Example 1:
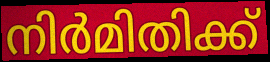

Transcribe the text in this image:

നിർമിതിക്ക്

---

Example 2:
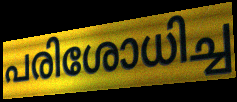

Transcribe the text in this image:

പരിശോധിച്ച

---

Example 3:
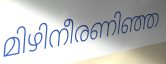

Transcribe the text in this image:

മിഴിനീരണിഞ്ഞ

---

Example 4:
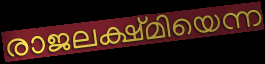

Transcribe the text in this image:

രാജലക്ഷ്മിയെന്ന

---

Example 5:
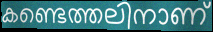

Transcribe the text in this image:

കണ്ടെത്തലിനാണ്